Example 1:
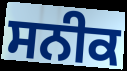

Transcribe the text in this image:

ਸਨੀਕ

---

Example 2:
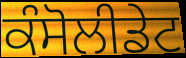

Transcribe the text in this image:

ਕੰਸੋਲੀਡੇਟ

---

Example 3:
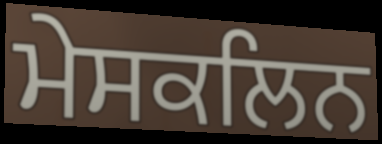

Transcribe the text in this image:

ਮੇਸਕਲਿਨ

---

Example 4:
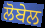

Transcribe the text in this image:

ਲੋਬੇਲ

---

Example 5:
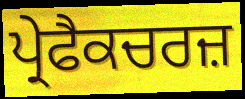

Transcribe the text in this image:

ਪ੍ਰੇਫੈਕਚਰਜ਼